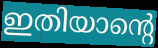
ഇതിയാന്റെ